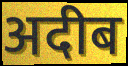
अदीब